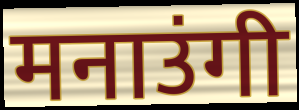
मनाउंगी